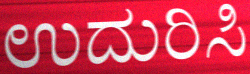
ಉದುರಿಸಿ